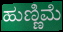
ಹುಣ್ಣಿಮೆ